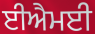
ਈਐਮਈ